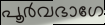
പൂർവഭാഗേ